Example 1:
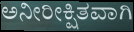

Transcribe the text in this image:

ಅನೀರೀಕ್ಷಿತವಾಗಿ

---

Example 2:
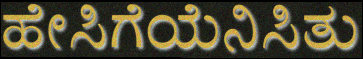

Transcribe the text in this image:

ಹೇಸಿಗೆಯೆನಿಸಿತು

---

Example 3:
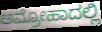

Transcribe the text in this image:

ಅಮ್ರೋಹಾದಲ್ಲಿ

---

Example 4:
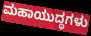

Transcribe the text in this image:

ಮಹಾಯುದ್ಧಗಳು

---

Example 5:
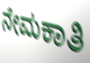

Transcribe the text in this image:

ನೇಮಕಾತಿ